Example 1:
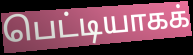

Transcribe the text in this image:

பெட்டியாகக்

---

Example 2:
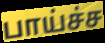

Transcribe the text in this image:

பாய்ச்ச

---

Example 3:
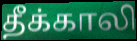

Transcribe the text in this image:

தீக்காலி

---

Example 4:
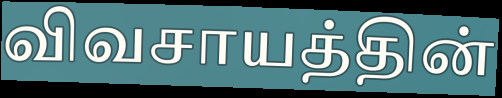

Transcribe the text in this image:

விவசாயத்தின்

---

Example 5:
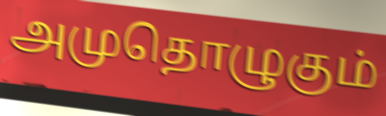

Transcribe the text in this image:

அமுதொழுகும்